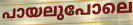
പായലുപോലെ